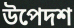
উপেদশ